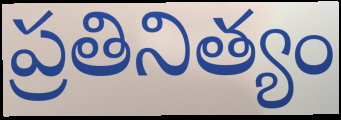
ప్రతినిత్యం